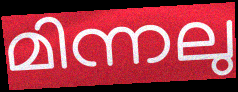
മിന്നലു